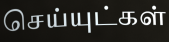
செய்யுட்கள்